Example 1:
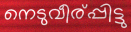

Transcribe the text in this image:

നെടുവീര്പ്പിട്ടു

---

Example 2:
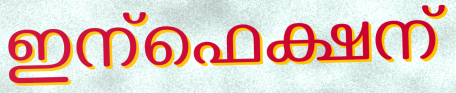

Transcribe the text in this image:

ഇന്ഫെക്ഷന്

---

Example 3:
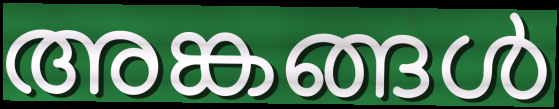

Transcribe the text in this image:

അങ്കങ്ങൾ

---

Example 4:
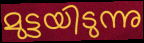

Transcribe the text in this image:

മുട്ടയിടുന്നു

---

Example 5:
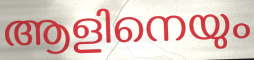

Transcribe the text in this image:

ആളിനെയും